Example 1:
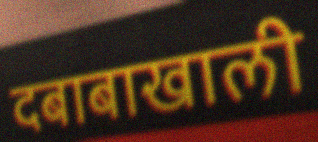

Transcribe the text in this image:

दबाबाखाली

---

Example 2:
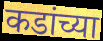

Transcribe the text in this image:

कडांच्या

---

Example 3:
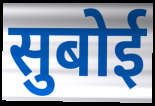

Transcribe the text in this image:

सुबोई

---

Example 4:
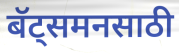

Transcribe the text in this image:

बॅट्समनसाठी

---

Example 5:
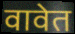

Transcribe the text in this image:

वावेत